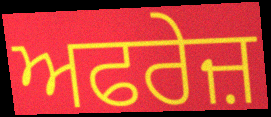
ਅਫਰੇਜ਼